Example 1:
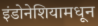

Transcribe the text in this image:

इंडोनेशियामधून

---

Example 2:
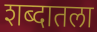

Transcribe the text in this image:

शब्दातला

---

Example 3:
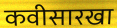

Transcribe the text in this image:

कवीसारखा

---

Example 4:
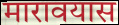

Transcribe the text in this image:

मारावयास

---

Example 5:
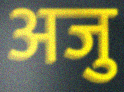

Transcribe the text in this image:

अजु